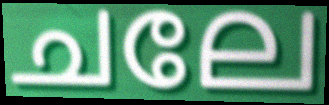
ചലേ